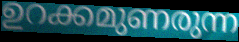
ഉറക്കമുണരുന്ന